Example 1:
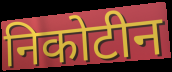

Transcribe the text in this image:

निकोटीन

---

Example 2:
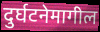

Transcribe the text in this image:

दुर्घटनेमागील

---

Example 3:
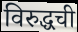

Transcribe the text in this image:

विरुद्धची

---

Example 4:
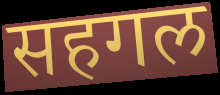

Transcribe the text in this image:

सहगल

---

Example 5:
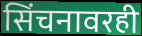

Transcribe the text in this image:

सिंचनावरही